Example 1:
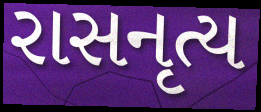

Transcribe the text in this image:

રાસનૃત્ય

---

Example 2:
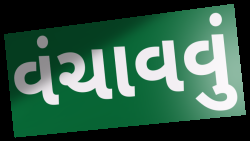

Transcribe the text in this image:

વંચાવવું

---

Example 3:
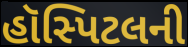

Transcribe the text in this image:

હૉસ્પિટલની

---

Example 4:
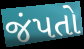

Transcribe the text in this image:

જંપતો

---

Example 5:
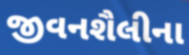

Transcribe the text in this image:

જીવનશૈલીના